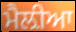
ਮੈਲ਼ੀਆ